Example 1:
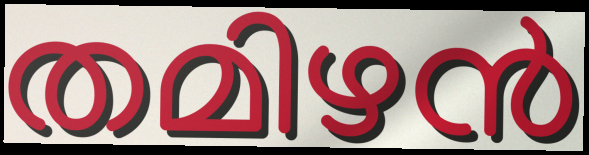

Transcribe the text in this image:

തമിഴൻ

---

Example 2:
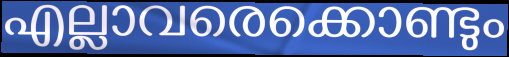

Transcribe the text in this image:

എല്ലാവരെക്കൊണ്ടും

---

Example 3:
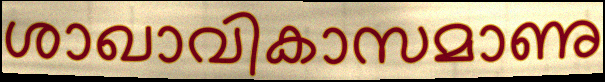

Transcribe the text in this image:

ശാഖാവികാസമാണു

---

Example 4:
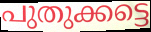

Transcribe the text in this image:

പുതുക്കട്ടെ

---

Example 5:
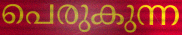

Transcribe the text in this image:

പെരുകുന്ന